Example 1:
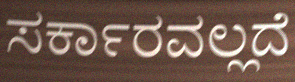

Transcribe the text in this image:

ಸರ್ಕಾರವಲ್ಲದೆ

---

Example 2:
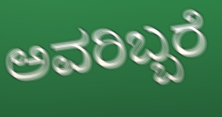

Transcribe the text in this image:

ಅವರಿಬ್ಬರೆ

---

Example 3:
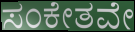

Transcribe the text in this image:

ಸಂಕೇತವೇ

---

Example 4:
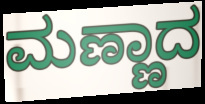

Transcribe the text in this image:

ಮಣ್ಣಾದ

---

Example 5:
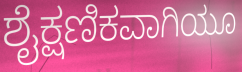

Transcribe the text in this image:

ಶೈಕ್ಷಣಿಕವಾಗಿಯೂ